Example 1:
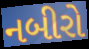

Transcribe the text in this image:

નબીરો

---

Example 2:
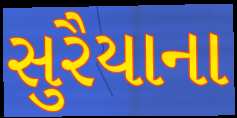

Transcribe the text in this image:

સુરૈયાના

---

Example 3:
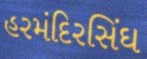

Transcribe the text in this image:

હરમંદિરસિંઘ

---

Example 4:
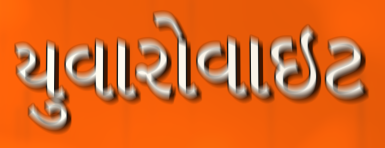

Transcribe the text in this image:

યુવારોવાઇટ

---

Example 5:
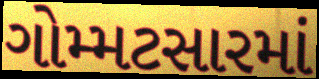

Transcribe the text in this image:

ગોમ્મટસારમાં